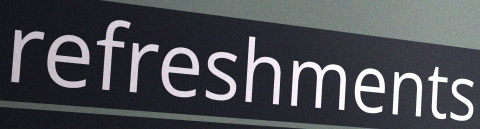
refreshments